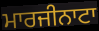
ਮਾਰਜੀਨਾਟਾ